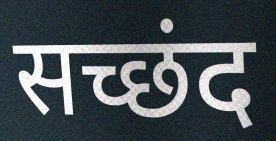
सच्छंद